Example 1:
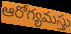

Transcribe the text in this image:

ఆరోగ్యమస్తు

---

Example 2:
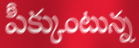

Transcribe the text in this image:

పీక్కుంటున్న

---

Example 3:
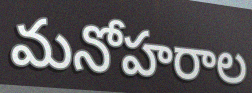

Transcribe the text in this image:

మనోహరాల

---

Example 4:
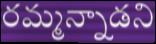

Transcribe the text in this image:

రమ్మన్నాడని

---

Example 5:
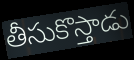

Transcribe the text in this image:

తీసుకొస్తాడు